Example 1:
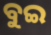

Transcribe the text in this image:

ବୁଇ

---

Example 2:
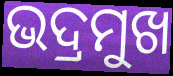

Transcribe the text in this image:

ଭଦ୍ରମୁଖ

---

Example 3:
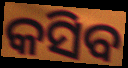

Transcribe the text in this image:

କସିବ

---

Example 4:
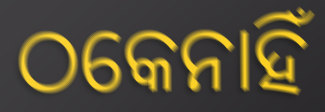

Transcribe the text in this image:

ଠକେନାହିଁ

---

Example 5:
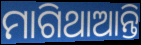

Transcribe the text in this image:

ମାଗିଥାଆନ୍ତି